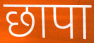
छापा